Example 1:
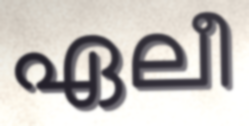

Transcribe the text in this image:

ഏലീ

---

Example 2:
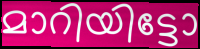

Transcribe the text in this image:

മാറിയിട്ടോ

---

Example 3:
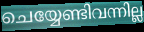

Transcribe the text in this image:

ചെയ്യേണ്ടിവന്നില്ല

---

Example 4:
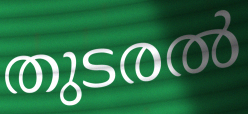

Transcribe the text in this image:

തുടരൽ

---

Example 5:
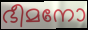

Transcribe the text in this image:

ഭീമനോ